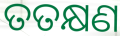
ତତକ୍ଷଣ